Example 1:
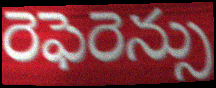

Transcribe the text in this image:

రెఫెరెన్సు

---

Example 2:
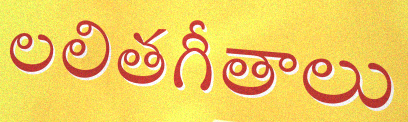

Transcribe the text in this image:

లలితగీతాలు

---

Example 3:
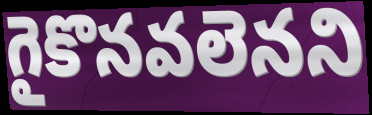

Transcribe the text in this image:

గైకొనవలెనని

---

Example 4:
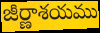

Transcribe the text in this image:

జీర్ణాశయము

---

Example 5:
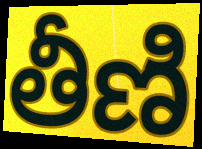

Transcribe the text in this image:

తీణి